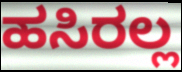
ಹಸಿರಲ್ಲ